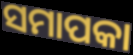
ସମାପକା